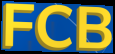
FCB